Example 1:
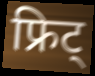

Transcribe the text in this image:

फ्रिट्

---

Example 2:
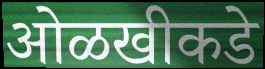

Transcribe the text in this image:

ओळखीकडे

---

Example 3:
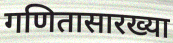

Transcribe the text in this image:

गणितासारख्या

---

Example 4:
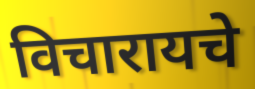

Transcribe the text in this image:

विचारायचे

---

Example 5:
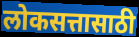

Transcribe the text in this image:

लोकसत्तासाठी